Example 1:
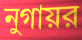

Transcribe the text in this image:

নুগায়র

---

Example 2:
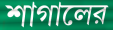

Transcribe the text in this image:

শাগালের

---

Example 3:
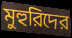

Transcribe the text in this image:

মুহুরিদের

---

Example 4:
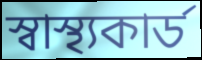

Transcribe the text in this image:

স্বাস্থ্যকার্ড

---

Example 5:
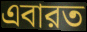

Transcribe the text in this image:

এবারত